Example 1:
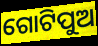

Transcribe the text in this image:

ଗୋଟିପୁଅ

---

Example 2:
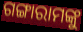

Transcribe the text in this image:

ଗଙ୍ଗାରାମଙ୍କୁ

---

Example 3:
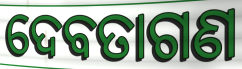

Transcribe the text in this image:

ଦେବତାଗଣ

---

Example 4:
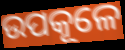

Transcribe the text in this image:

ଉପକୂଳେ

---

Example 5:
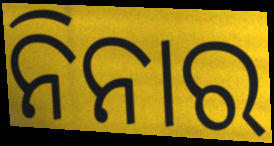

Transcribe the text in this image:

ନିନାର